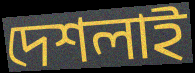
দেশলাই